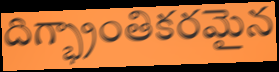
దిగ్భ్రాంతికరమైన